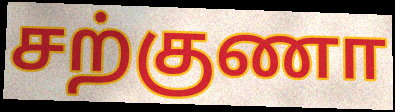
சற்குணா